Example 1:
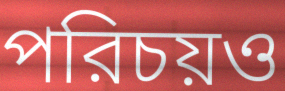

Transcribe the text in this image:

পরিচয়ও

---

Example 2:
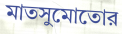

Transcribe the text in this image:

মাতসুমোতোর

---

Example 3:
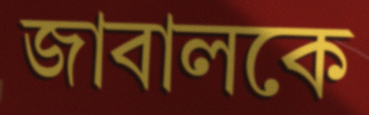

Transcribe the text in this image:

জাবালকে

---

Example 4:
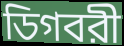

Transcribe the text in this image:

ডিগবরী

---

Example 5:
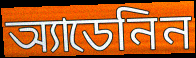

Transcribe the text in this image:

অ্যাডেনিন